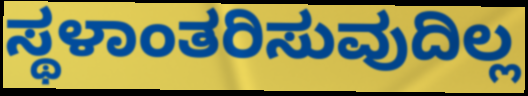
ಸ್ಥಳಾಂತರಿಸುವುದಿಲ್ಲ